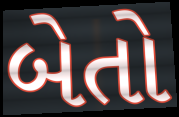
બેતો